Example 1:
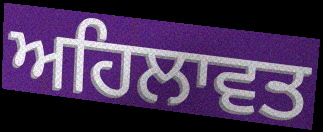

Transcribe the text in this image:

ਅਹਿਲਾਵਤ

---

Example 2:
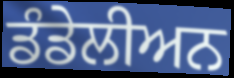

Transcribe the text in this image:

ਡੰਡੇਲੀਅਨ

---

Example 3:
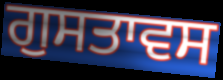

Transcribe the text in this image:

ਗੁਸਤਾਵਸ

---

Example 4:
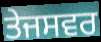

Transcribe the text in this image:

ਤੇਜਸਵਰ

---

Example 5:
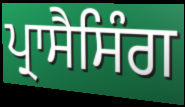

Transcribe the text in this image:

ਪ੍ਰਾਸੈਸਿੰਗ